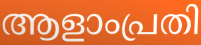
ആളാംപ്രതി